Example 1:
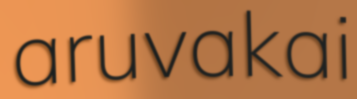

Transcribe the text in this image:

aruvakai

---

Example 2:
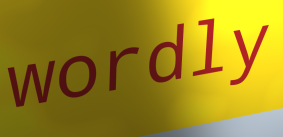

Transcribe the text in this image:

wordly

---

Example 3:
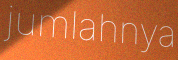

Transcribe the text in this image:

jumlahnya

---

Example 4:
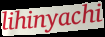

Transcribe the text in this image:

lihinyachi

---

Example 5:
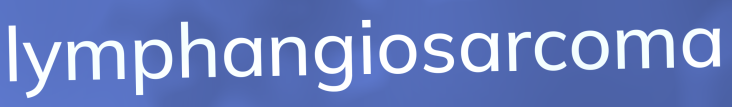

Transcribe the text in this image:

lymphangiosarcoma